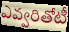
ఎవ్వరితోటీ